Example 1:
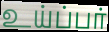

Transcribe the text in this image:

உய்ப்பர்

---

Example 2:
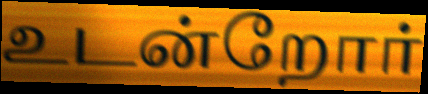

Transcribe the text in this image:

உடன்றோர்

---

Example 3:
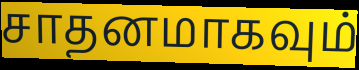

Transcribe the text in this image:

சாதனமாகவும்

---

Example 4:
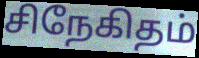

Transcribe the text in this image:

சிநேகிதம்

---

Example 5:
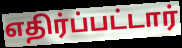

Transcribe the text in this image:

எதிர்ப்பட்டார்